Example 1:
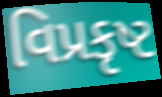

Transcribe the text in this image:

વિપ્રકૃષ્ટ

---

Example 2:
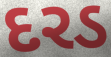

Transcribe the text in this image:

દરડ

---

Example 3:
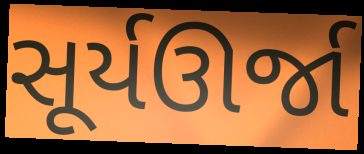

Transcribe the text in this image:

સૂર્યઊર્જા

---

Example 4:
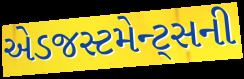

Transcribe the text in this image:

એડજસ્ટમેન્ટ્સની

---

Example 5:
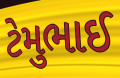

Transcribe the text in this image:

ટેમુભાઈ